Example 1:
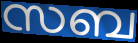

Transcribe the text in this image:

സബ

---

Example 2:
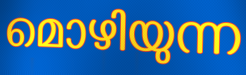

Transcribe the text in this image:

മൊഴിയുന്ന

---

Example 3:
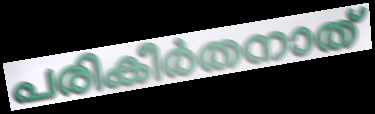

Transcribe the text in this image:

പരികീർതനാത്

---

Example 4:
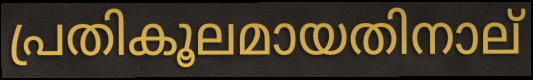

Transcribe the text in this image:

പ്രതികൂലമായതിനാല്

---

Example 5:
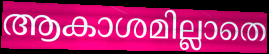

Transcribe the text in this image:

ആകാശമില്ലാതെ